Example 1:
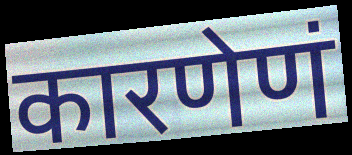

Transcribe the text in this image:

कारणेणं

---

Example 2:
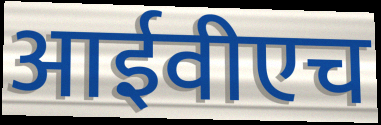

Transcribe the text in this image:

आईवीएच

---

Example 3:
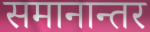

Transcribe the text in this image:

समानान्तर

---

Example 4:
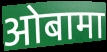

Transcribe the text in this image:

ओबामा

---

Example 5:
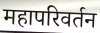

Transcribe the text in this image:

महापरिवर्तन